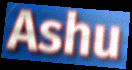
Ashu